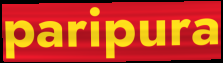
paripura